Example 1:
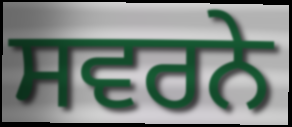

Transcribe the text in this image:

ਸਵਰਨੇ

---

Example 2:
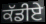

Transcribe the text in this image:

ਕੱਡੀਏ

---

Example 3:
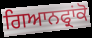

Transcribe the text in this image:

ਗਿਆਨਫ੍ਰਾਂਕੋ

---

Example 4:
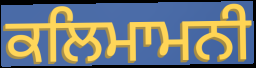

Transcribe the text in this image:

ਕਲਿਮਾਮਨੀ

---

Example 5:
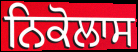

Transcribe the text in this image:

ਨਿਕੋਲਾਸ